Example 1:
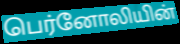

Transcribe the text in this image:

பெர்னோலியின்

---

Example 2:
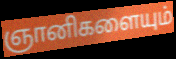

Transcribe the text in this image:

ஞானிகளையும்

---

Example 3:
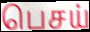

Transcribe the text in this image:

பெசய்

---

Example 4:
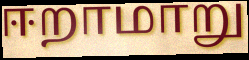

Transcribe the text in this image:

ஈறாமாறு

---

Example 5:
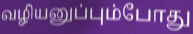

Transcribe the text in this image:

வழியனுப்பும்போது